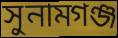
সুনামগঞ্জ